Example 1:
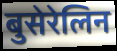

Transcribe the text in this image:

बुसेरेलिन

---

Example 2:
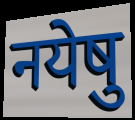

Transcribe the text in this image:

नयेषु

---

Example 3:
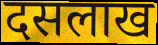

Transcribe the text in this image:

दसलाख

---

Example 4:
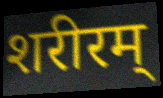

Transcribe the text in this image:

शरीरम्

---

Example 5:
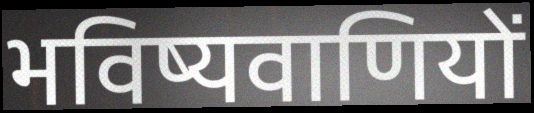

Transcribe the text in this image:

भविष्यवाणियों